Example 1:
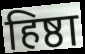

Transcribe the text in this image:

हिष्ठा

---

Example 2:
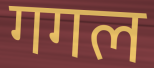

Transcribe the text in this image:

गगल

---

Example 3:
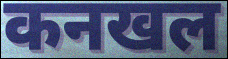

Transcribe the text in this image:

कनखल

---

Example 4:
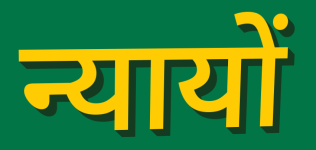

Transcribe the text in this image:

न्यायों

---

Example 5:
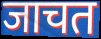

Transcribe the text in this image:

जाचत